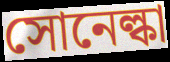
সোনেল্কা